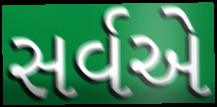
સર્વએ